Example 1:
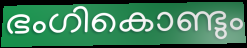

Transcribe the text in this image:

ഭംഗികൊണ്ടും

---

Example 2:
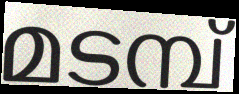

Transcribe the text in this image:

മടമ്പ്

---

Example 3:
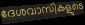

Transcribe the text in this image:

ദേശവാസികളുടെ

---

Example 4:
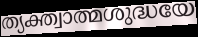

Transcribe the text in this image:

ത്യക്ത്വാത്മശുദ്ധയേ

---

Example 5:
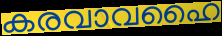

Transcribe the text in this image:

കരവാവഹൈ